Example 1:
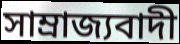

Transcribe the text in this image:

সাম্ৰাজ্যবাদী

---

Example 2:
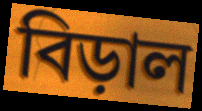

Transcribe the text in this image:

বিড়াল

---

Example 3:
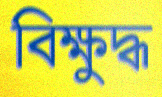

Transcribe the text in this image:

বিক্ষুদ্ধ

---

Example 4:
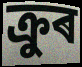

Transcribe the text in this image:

ক্ৰুৰ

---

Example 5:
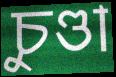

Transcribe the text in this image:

চুণ্ডা